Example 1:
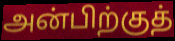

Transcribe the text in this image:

அன்பிற்குத்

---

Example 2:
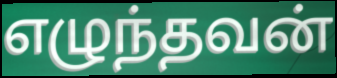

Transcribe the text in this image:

எழுந்தவன்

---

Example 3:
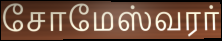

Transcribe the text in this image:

சோமேஸ்வரர்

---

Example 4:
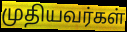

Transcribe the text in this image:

முதியவர்கள்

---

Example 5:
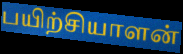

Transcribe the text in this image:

பயிற்சியாளன்